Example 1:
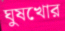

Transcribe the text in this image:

ঘুষখোর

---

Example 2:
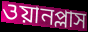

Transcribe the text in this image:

ওয়ানপ্লাস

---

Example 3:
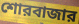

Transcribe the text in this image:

শোরবাজার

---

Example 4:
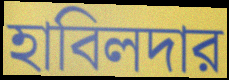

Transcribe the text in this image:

হাবিলদার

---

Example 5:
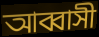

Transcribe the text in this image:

আব্বাসী